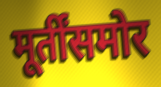
मूर्तींसमोर